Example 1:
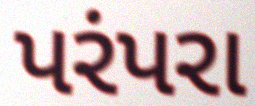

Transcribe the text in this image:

પરંપરા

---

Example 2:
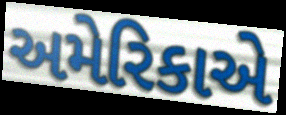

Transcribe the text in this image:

અમેરિકાએ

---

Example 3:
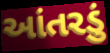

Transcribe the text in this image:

આંતરડું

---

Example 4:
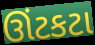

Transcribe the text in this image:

ઊંટકટા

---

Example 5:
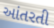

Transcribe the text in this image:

આંતરતી